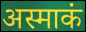
अस्माकं